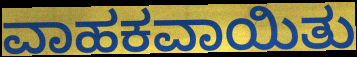
ವಾಹಕವಾಯಿತು